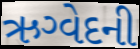
ઋગ્વેદની